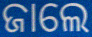
ଜାଲେ